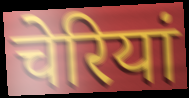
चेरियां